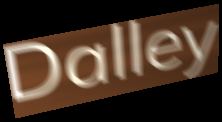
Dalley